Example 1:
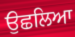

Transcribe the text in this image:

ਉਛਲਿਆ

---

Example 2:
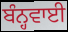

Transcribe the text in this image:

ਬੰਨ੍ਹਵਾਈ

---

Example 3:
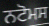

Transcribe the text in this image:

ਨਟੋਮਸ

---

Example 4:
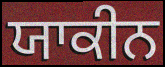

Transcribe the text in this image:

ਯਾਕੀਨ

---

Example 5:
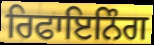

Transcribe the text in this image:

ਰਿਫਾਇਨਿੰਗ